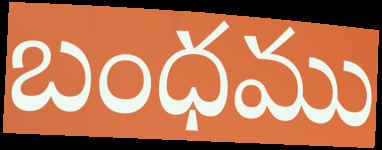
బంధము